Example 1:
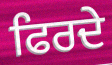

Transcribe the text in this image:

ਫਿਰਦੇ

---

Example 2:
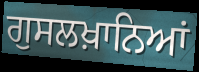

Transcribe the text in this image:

ਗੁਸਲਖ਼ਾਨਿਆਂ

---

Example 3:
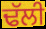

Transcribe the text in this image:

ਢੱਲੀ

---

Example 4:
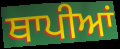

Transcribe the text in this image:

ਥਾਪੀਆਂ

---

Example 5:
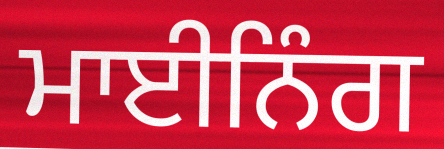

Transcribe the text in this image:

ਮਾਈਨਿੰਗ